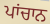
ਪਾਂਚਾਨ